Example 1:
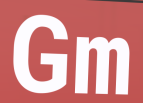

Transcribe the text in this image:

Gm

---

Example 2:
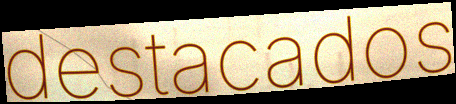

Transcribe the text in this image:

destacados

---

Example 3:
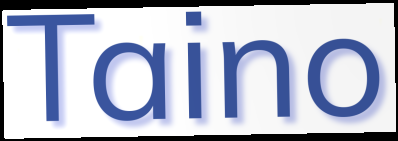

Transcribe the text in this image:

Taino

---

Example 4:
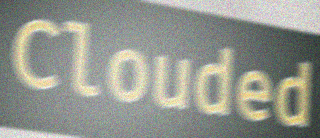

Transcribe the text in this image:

Clouded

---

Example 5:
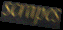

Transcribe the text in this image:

scrapes